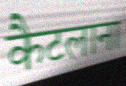
कैटलाना